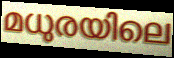
മധുരയിലെ